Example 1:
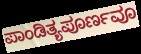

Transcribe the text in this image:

ಪಾಂಡಿತ್ಯಪೂರ್ಣವೂ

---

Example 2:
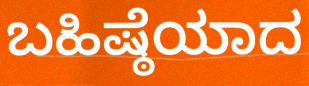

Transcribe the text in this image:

ಬಹಿಷ್ಠೆಯಾದ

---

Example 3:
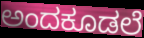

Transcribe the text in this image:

ಅಂದಕೂಡಲೆ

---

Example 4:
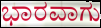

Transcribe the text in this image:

ಭಾರವಾಗು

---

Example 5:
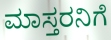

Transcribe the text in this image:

ಮಾಸ್ತರನಿಗೆ